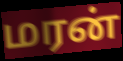
மரன்